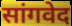
सांगवेद